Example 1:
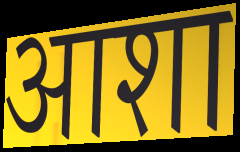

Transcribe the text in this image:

आशा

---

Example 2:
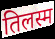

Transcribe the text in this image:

तिलस्म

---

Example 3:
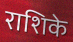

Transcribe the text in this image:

राशिके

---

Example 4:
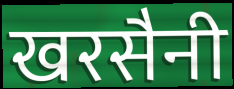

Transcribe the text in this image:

खरसैनी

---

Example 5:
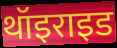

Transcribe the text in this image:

थॉइराइड